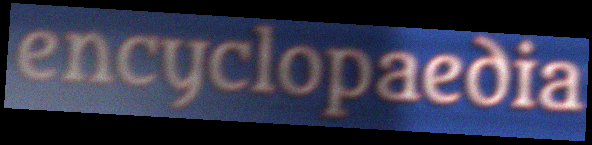
encyclopaedia